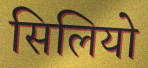
सिलियो